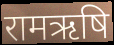
रामऋषि